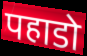
पहाडो